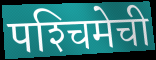
पश्चिमेची